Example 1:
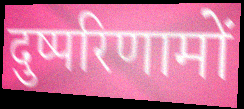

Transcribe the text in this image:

दुष्परिणामों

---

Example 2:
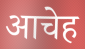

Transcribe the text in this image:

आचेह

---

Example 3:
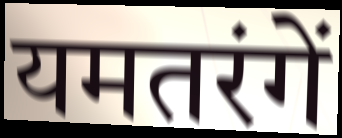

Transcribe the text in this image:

यमतरंगें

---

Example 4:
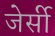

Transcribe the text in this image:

जेर्सी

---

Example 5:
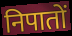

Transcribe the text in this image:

निपातों